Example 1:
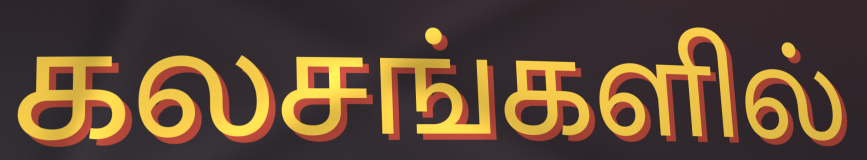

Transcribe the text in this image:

கலசங்களில்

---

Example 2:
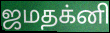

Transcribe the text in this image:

ஜமதக்னி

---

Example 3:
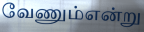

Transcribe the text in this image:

வேணும்என்று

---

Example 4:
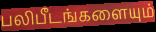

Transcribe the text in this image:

பலிபீடங்களையும்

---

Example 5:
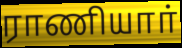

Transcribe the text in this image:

ராணியார்